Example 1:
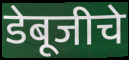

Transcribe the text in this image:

डेबूजीचे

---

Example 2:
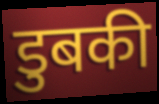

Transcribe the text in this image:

डुबकी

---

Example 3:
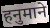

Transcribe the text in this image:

हनुमाने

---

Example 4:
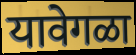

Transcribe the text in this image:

यावेगळा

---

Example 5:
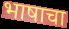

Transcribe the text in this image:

भाषाचा